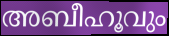
അബീഹൂവും